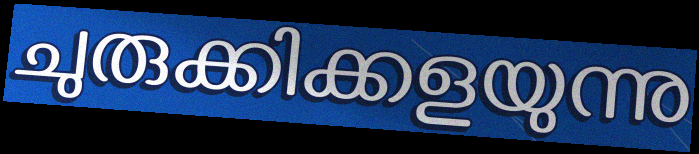
ചുരുക്കിക്കളയുന്നു